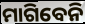
ମାଗିବେନି